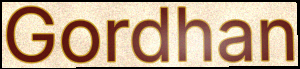
Gordhan